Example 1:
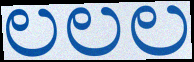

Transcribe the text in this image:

ಲಲಲ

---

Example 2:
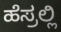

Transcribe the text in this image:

ಹೆಸ್ರಲ್ಲಿ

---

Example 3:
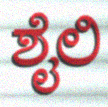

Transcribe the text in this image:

ಶೈಲಿ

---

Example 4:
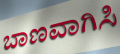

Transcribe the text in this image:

ಬಾಣವಾಗಿಸಿ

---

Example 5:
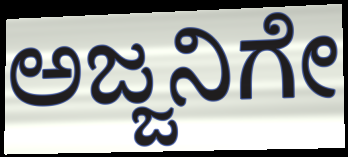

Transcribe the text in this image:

ಅಜ್ಜನಿಗೇ